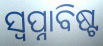
ସ୍ୱପ୍ନାବିଷ୍ଟ